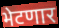
भेटणार